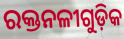
ରକ୍ତନଳୀଗୁଡ଼ିକ